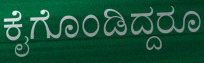
ಕೈಗೊಂಡಿದ್ದರೂ